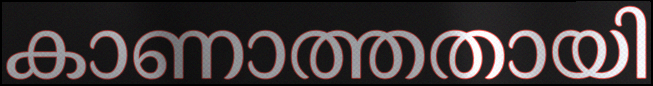
കാണാത്തതായി